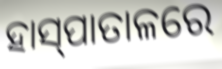
ହାସ୍‌ପାତାଳରେ